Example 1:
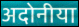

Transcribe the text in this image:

अदोनीया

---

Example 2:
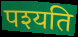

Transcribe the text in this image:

पश्यति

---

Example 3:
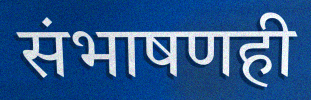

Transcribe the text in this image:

संभाषणही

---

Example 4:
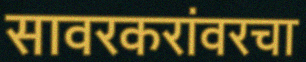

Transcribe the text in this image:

सावरकरांवरचा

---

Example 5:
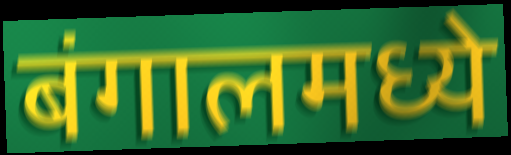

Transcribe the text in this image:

बंगालमध्ये